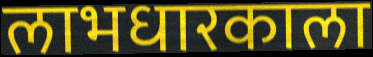
लाभधारकाला